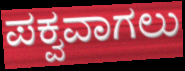
ಪಕ್ವವಾಗಲು